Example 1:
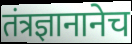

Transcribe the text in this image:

तंत्रज्ञानानेच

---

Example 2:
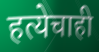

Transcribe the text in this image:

हत्येचाही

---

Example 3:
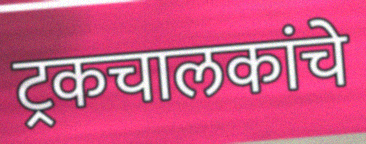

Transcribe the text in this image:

ट्रकचालकांचे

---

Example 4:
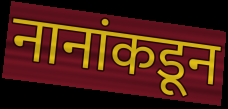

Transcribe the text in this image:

नानांकडून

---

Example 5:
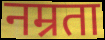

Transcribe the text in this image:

नम्रता